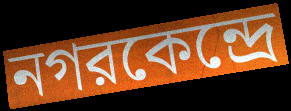
নগরকেন্দ্রে